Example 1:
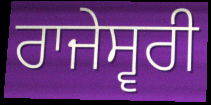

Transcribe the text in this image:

ਰਾਜੇਸ੍ਵਰੀ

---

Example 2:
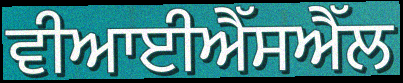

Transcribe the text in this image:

ਵੀਆਈਐੱਸਐੱਲ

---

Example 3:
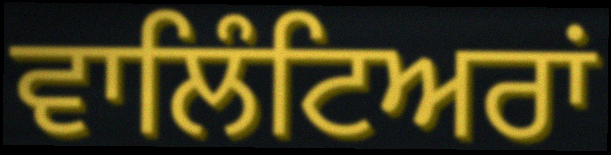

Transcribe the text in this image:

ਵਾਲਿੰਟਿਅਰਾਂ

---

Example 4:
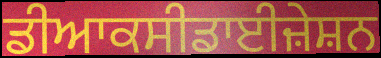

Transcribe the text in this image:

ਡੀਆਕਸੀਡਾਈਜ਼ੇਸ਼ਨ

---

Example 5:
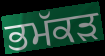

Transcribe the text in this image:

ਭਮੱਕੜ